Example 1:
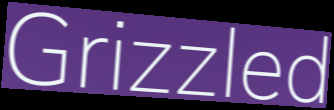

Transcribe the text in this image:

Grizzled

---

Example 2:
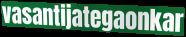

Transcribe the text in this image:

vasantijategaonkar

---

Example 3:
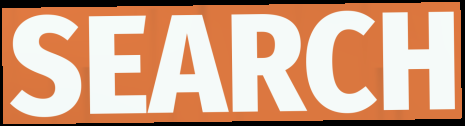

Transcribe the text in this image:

SEARCH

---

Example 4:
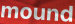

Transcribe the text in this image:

mound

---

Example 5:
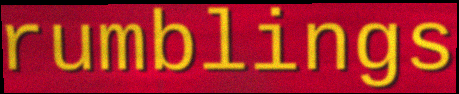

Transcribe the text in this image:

rumblings